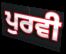
ਪੁਰਵੀ